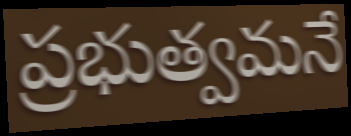
ప్రభుత్వమనే